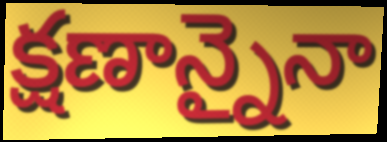
క్షణాన్నైనా